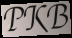
PKB